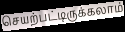
செயற்பட்டிருக்கலாம்